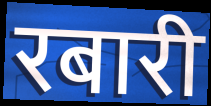
रबारी